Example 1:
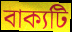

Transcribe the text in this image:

বাক্যটি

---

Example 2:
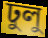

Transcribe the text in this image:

ঢুলু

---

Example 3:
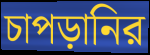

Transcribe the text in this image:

চাপড়ানির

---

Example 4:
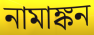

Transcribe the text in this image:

নামাঙ্কন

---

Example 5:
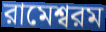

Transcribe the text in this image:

রামেশ্বরম